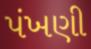
પંખણી